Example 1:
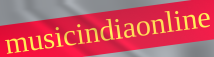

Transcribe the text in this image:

musicindiaonline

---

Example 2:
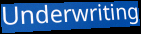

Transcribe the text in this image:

Underwriting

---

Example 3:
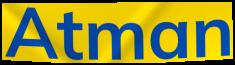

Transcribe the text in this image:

Atman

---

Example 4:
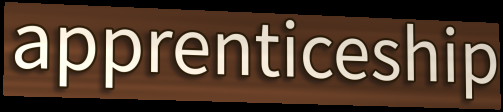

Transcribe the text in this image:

apprenticeship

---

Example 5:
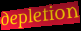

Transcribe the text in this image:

depletion